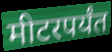
मीटरपर्यंत